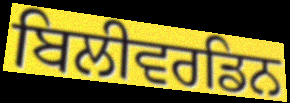
ਬਿਲੀਵਰਡਿਨ